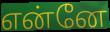
என்னே